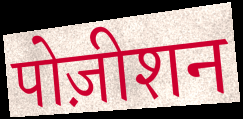
पोज़ीशन